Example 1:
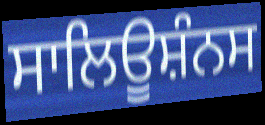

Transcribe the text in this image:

ਸਾਲਿਊਸ਼ੰਨਸ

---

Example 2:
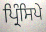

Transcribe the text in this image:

ਪ੍ਰਿੰਸਿਪੇ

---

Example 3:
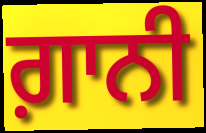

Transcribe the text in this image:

ਗ਼ਾਨੀ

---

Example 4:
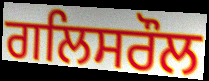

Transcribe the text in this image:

ਗਲਿਸਰੌਲ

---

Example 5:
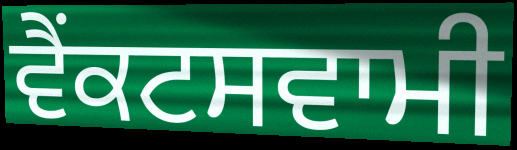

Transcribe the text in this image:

ਵੈਂਕਟਸਵਾਮੀ